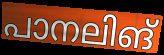
പാനലിങ്